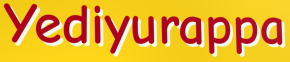
Yediyurappa